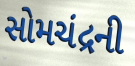
સોમચંદ્રની